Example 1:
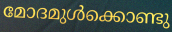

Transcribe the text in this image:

മോദമുൾക്കൊണ്ടു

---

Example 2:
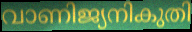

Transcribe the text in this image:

വാണിജ്യനികുതി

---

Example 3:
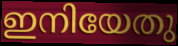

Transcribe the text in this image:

ഇനിയേതു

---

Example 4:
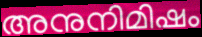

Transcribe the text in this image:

അനുനിമിഷം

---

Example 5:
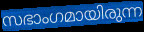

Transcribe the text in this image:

സഭാംഗമായിരുന്ന